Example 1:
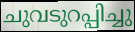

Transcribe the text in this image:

ചുവടുറപ്പിച്ചു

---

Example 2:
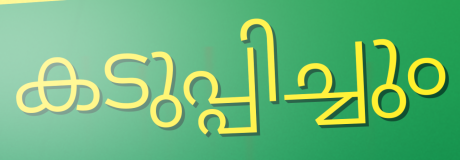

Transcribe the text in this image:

കടുപ്പിച്ചും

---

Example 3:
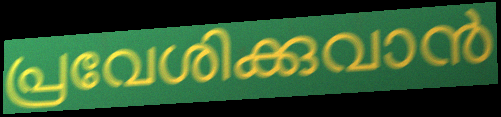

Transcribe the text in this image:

പ്രവേശിക്കുവാൻ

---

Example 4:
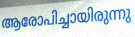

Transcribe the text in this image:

ആരോപിച്ചായിരുന്നു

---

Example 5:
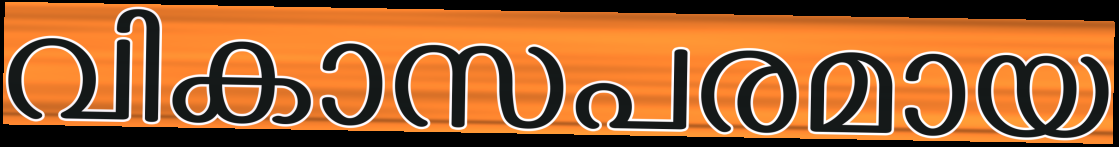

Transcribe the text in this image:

വികാസപരമായ